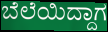
ಬೆಲೆಯಿದ್ದಾಗ